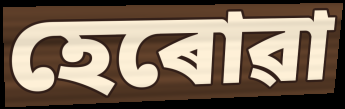
হেৰোৱা